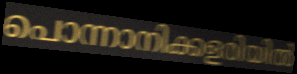
പൊന്നാനിക്കളരിയിൽ